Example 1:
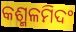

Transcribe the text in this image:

କଶ୍ମଳମିଦଂ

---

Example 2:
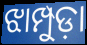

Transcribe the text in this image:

ଝାମ୍ପୁଡ଼ା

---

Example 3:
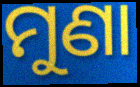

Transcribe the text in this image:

ମୁଣା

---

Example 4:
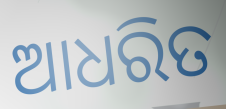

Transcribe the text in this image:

ଆଧରିତ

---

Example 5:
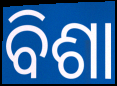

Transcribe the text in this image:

ବିଶା